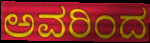
ಅವರಿಂದ